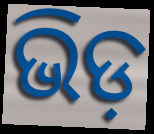
ଭିଡ଼